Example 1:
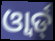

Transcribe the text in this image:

ଓ୍ୱାର୍ଡ୍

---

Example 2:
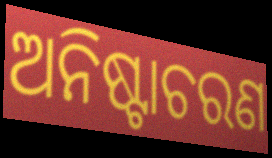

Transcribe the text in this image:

ଅନିଷ୍ଟାଚରଣ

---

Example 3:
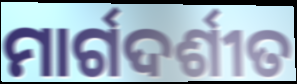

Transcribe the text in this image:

ମାର୍ଗଦର୍ଶୀତ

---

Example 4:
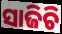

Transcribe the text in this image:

ସାଜିଚି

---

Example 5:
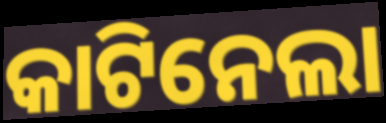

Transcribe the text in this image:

କାଟିନେଲା